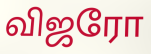
விஜரோ